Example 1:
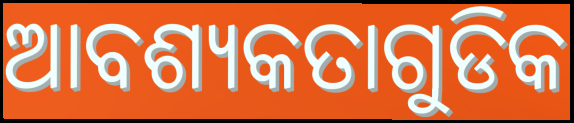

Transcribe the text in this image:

ଆବଶ୍ୟକତାଗୁଡିକ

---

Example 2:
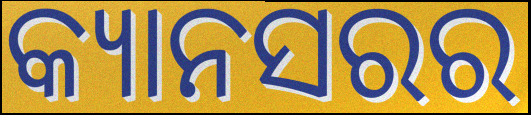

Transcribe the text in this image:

କ୍ୟାନସରର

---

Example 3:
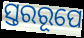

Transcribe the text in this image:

ସ୍ତରରୂପେ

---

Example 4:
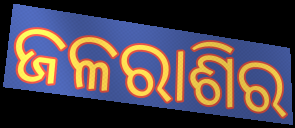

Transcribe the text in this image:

ଜଳରାଶିର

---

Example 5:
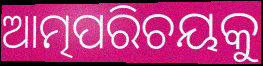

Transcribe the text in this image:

ଆତ୍ମପରିଚୟକୁ